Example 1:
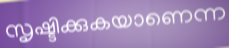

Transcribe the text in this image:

സൃഷ്ടിക്കുകയാണെന്ന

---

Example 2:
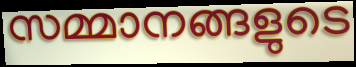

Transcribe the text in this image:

സമ്മാനങ്ങളുടെ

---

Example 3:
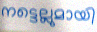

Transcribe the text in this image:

നട്ടെല്ലുമായി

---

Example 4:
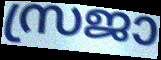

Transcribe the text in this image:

സ്രജാ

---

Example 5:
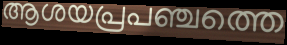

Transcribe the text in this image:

ആശയപ്രപഞ്ചത്തെ